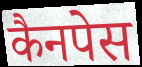
कैनपेस